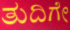
ತುದಿಗೇ